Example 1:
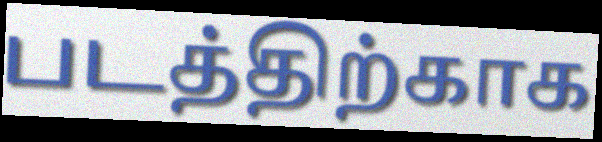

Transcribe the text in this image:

படத்திற்காக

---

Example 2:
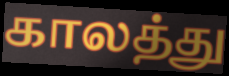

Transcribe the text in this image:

காலத்து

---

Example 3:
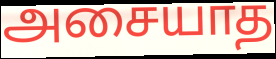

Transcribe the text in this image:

அசையாத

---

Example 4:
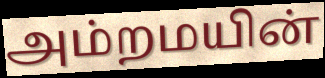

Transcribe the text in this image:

அம்றமயின்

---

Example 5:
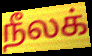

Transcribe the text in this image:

நீலக்